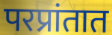
परप्रांतात